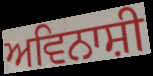
ਅਵਿਨਾਸ਼ੀ